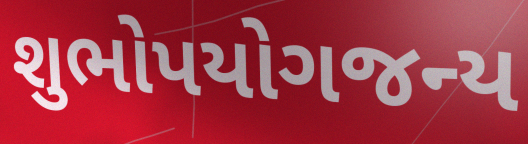
શુભોપયોગજન્ય